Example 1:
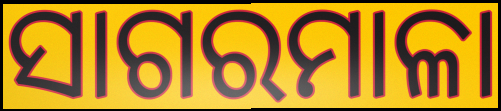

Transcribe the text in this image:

ସାଗରମାଳା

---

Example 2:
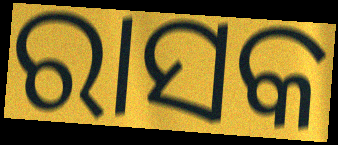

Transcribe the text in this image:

ରାସକ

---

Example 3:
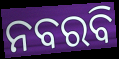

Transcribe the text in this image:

ନବରବି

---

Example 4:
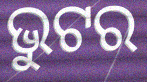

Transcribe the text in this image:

ଭୁଟର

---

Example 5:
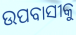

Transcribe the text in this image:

ଉପବାସୀକୁ